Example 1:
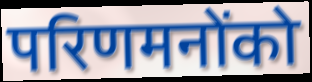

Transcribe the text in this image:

परिणमनोंको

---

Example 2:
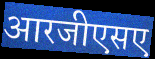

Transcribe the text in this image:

आरजीएसए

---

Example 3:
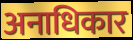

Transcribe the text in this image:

अनाधिकार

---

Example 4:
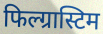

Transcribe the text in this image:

फिल्ग्रास्टिम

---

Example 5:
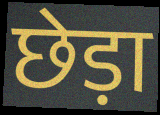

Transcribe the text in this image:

छेड़ा